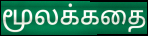
மூலக்கதை